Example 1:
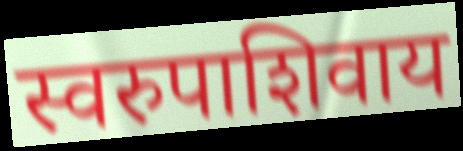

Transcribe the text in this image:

स्वरुपाशिवाय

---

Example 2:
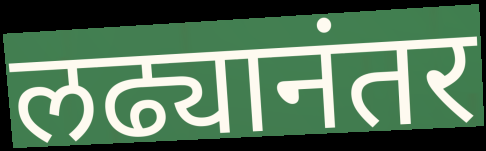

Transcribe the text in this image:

लढ्यानंतर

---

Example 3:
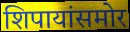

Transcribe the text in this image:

शिपायांसमोर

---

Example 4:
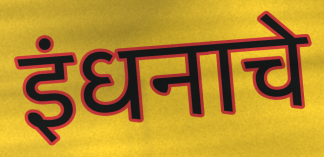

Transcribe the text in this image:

इंधनाचे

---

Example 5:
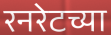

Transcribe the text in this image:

रनरेटच्या